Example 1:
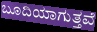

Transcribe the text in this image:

ಬೂದಿಯಾಗುತ್ತವೆ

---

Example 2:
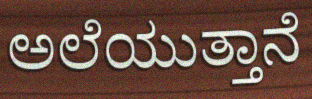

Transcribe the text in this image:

ಅಲೆಯುತ್ತಾನೆ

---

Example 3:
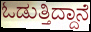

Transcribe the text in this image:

ಓಡುತ್ತಿದ್ದಾನೆ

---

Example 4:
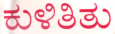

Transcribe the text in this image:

ಕುಳಿತಿತು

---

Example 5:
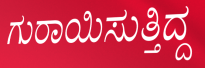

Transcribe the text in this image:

ಗುರಾಯಿಸುತ್ತಿದ್ದ